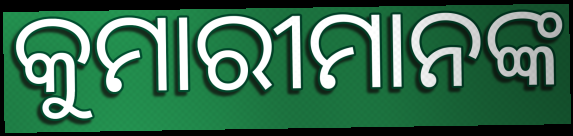
କୁମାରୀମାନଙ୍କ